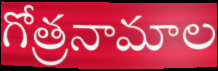
గోత్రనామాల